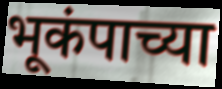
भूकंपाच्या